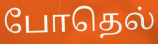
போதெல்